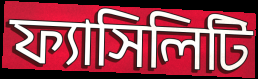
ফ্যাসিলিটি